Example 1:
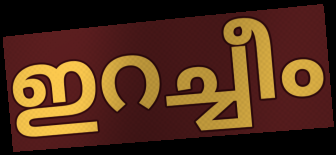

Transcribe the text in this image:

ഇറച്ചീം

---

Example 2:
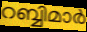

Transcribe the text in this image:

റബ്ബിമാർ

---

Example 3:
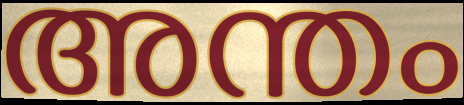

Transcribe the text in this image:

അന്തം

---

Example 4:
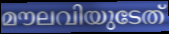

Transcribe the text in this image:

മൗലവിയുടേത്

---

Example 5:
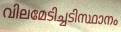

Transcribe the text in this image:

വിലമേടിച്ചടിസ്ഥാനം